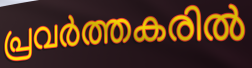
പ്രവർത്തകരിൽ